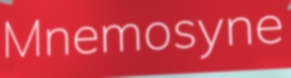
Mnemosyne